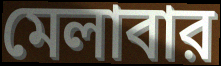
মেলাবার